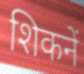
शिकनें